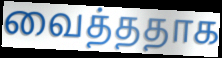
வைத்ததாக